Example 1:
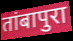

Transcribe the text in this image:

तांबापुरा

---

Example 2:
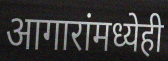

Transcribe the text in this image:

आगारांमध्येही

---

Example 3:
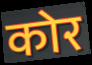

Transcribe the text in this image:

कोर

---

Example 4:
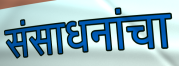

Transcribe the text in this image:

संसाधनांचा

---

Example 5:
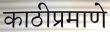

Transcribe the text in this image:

काठीप्रमाणे